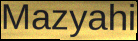
Mazyahi